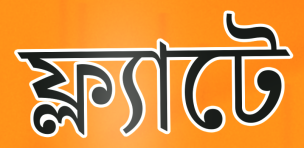
ফ্ল্যাটে